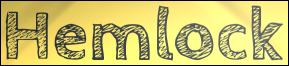
Hemlock